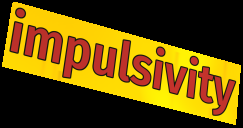
impulsivity